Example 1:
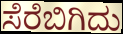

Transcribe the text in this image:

ಸೆರೆಬಿಗಿದು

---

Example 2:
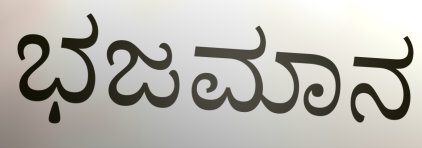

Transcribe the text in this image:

ಭಜಮಾನ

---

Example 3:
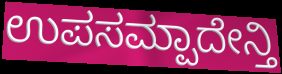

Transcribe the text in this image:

ಉಪಸಮ್ಪಾದೇನ್ತಿ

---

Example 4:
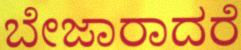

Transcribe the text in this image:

ಬೇಜಾರಾದರೆ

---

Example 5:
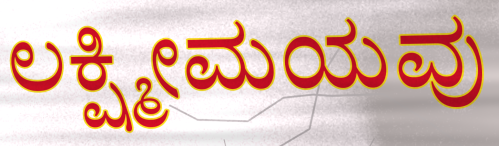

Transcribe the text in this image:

ಲಕ್ಷ್ಮೀಮಯವು